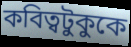
কবিত্বটুকুকে